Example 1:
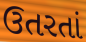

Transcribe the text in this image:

ઉતરતાં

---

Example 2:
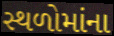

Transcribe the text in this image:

સ્થળોમાંના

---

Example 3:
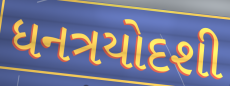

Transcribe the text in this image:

ધનત્રયોદશી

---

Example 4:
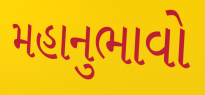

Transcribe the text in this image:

મહાનુભાવો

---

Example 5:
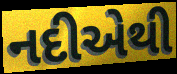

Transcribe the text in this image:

નદીએથી